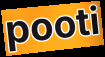
pooti